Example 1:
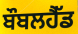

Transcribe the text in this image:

ਬੌਬਲਹੈੱਡ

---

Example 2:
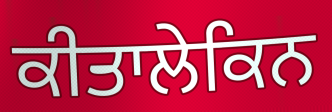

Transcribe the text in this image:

ਕੀਤਾਲੇਕਿਨ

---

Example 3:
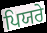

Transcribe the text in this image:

ਪਿਯਰੇ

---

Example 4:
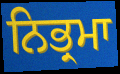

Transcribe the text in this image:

ਨਿਭ੍ਰਮਾ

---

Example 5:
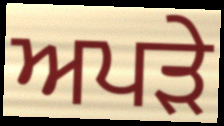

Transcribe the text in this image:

ਅਪੜੇ